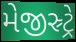
મેજીસ્ર્ટ્રે